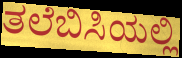
ತಲೆಬಿಸಿಯಲ್ಲಿ